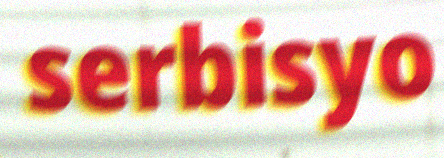
serbisyo